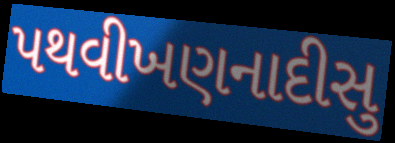
પથવીખણનાદીસુ